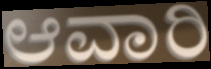
ಆವಾರಿ